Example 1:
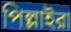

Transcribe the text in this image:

পিল্লাইরা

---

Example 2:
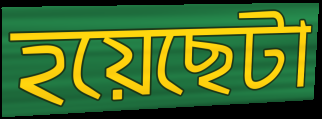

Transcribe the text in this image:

হয়েছেটা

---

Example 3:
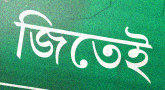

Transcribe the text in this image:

জিতেই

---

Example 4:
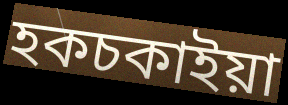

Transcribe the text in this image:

হকচকাইয়া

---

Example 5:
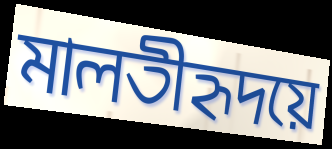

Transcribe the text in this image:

মালতীহৃদয়ে